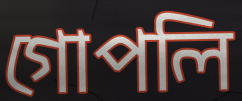
গোপলি